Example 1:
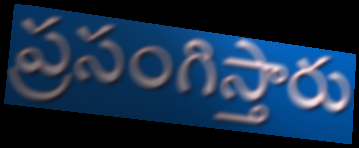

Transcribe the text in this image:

ప్రసంగిస్తారు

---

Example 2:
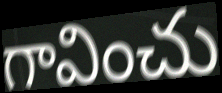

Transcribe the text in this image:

గావించు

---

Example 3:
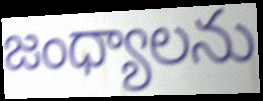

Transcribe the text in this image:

జంధ్యాలను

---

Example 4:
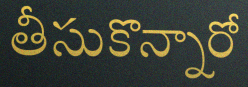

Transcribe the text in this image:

తీసుకొన్నారో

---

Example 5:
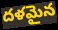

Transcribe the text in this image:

దళమైన